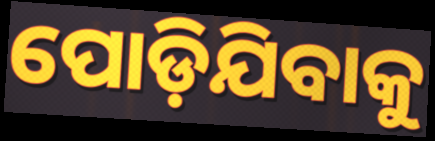
ପୋଡ଼ିଯିବାକୁ